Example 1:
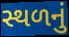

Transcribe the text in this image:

સ્થળનું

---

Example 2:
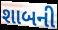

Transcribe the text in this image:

શાબની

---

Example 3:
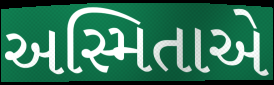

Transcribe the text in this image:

અસ્મિતાએ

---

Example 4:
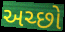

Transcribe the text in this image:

અચ્છો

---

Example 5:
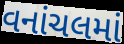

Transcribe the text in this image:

વનાંચલમાં